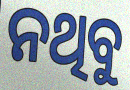
ନଥିବୁ